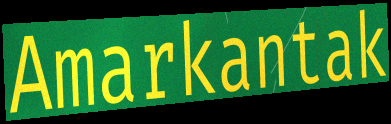
Amarkantak